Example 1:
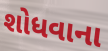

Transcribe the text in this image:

શોધવાના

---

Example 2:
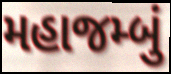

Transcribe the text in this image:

મહાજમ્બું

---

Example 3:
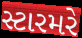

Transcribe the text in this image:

સ્ટારમરે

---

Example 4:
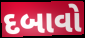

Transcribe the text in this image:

દબાવો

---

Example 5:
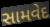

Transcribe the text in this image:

સામવેદ